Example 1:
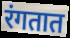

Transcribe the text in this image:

रंगतात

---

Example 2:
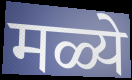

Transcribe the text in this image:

मळ्ये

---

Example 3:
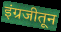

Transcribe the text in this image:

इंग्रजीतून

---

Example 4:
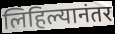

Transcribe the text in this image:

लिहिल्यानंतर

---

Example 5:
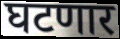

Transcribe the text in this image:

घटणार